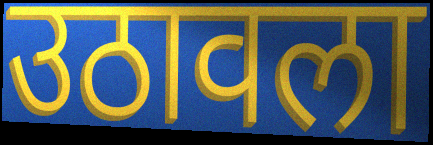
उठावला